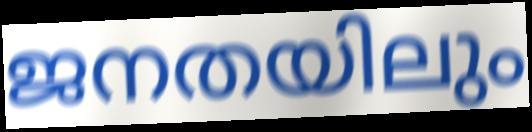
ജനതയിലും